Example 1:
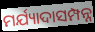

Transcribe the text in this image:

ମର୍ଯ୍ୟାଦାସମ୍ପନ୍ନ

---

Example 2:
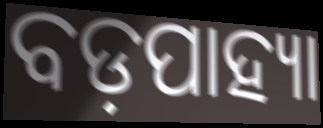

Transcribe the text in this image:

ବଡ଼ପାହ୍ୟା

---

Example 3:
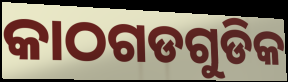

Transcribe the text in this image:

କାଠଗଡଗୁଡିକ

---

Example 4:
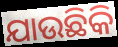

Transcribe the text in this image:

ଯାଉଛିକି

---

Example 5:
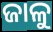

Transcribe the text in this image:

ଜାଳୁ